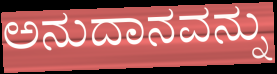
ಅನುದಾನವನ್ನು